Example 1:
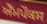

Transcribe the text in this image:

ਐੱਮਪੌਕਸ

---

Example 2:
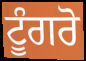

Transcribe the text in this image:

ਟੂੰਗਰੋ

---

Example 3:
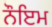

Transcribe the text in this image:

ਨੌਇਮ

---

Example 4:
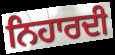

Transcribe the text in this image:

ਨਿਹਾਰਦੀ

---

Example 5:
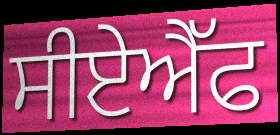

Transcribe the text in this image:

ਸੀਏਐੱਫ